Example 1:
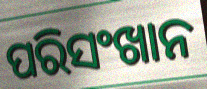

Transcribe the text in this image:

ପରିସଂଖାନ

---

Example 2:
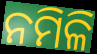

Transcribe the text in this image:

ନମିଳି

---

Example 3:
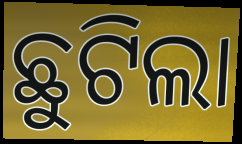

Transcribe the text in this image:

ଛୁଟିଲା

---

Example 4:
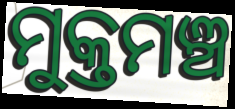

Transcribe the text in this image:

ମୁକ୍ତମଞ୍ଚ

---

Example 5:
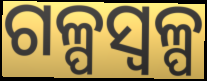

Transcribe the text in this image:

ଗଳ୍ପସ୍ୱଳ୍ପ